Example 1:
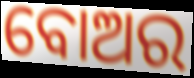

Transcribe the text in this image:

ବୋଅର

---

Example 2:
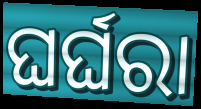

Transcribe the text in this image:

ଘର୍ଘରା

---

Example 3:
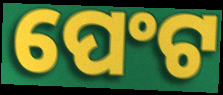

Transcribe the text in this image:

ପେଂଟ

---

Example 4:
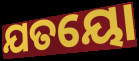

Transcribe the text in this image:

ଯତୟୋ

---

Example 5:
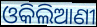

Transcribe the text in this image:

ଓକିଲିଆଣୀ